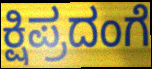
ಕ್ಷಿಪ್ರದಂಗೆ